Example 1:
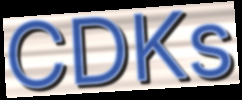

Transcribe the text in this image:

CDKs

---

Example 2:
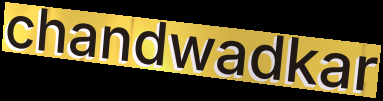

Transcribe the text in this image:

chandwadkar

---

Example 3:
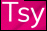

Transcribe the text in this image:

Tsy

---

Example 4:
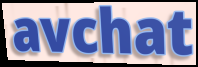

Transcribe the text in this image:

avchat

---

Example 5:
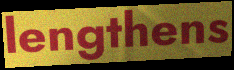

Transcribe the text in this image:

lengthens